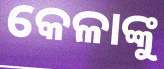
କେଳାଙ୍କୁ